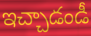
ఇచ్చాడండీ